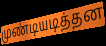
முண்டியடித்தன